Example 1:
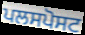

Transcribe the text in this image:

ਪਲਸਪੋਸਟ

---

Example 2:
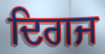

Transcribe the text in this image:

ਦਿਗਜ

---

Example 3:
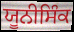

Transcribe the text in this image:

ਯੂਨੀਸਿੰਕ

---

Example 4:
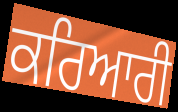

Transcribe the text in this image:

ਕਰਿਆਰੀ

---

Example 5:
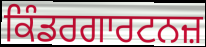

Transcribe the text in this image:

ਕਿੰਡਰਗਾਰਟਨਜ਼